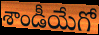
శాండీయేగో